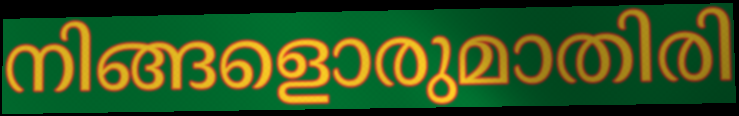
നിങ്ങളൊരുമാതിരി